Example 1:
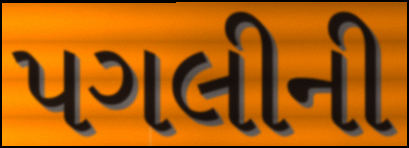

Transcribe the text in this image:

પગલીની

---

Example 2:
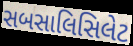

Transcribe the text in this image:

સબસાલિસિલેટ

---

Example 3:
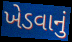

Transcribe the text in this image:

ખેડવાનું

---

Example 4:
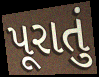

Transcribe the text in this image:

પૂરાતું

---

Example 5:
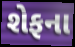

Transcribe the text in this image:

શેફના